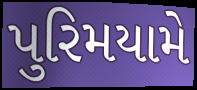
પુરિમયામે